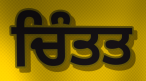
ਚਿੰਤਤ